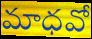
మాధవో